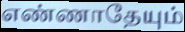
எண்ணாதேயும்